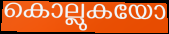
കൊല്ലുകയോ